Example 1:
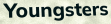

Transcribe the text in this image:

Youngsters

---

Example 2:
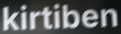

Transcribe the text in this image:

kirtiben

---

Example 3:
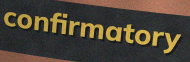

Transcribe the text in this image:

confirmatory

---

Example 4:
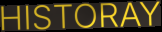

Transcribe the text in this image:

HISTORAY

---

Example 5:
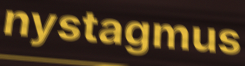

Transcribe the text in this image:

nystagmus